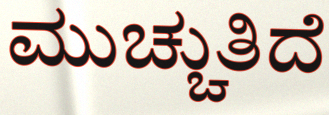
ಮುಚ್ಚುತಿದೆ